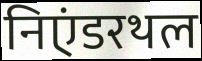
निएंडरथल